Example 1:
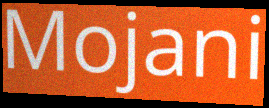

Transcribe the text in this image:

Mojani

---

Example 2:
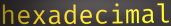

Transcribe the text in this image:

hexadecimal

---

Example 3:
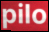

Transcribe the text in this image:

pilo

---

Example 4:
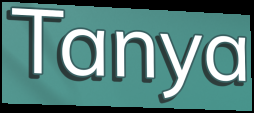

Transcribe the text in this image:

Tanya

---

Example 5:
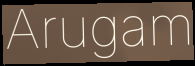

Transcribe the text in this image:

Arugam